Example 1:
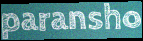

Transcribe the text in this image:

paransho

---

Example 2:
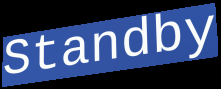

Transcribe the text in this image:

Standby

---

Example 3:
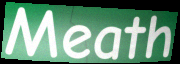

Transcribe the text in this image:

Meath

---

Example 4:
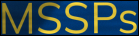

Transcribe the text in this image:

MSSPs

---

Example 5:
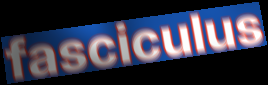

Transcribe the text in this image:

fasciculus